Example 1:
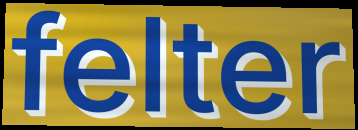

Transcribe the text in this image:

felter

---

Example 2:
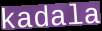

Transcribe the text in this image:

kadala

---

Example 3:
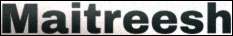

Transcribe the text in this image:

Maitreesh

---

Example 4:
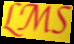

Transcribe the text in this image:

LMS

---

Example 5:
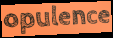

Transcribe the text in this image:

opulence